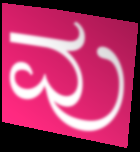
ವು